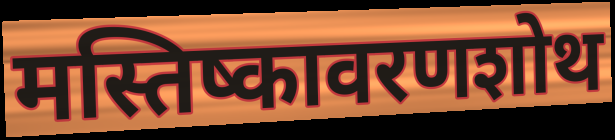
मस्तिष्कावरणशोथ